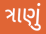
ત્રાણું